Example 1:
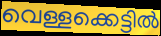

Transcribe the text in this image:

വെള്ളക്കെട്ടിൽ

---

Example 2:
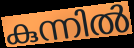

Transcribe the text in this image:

കുന്നിൽ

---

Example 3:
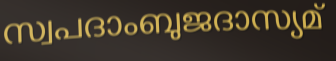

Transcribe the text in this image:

സ്വപദാംബുജദാസ്യമ്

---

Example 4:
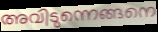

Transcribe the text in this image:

അവിടുന്നെങ്ങനെ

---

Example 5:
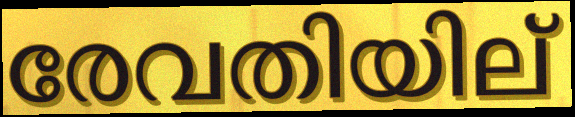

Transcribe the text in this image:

രേവതിയില്